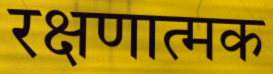
रक्षणात्मक